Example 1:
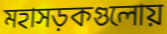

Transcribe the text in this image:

মহাসড়কগুলোয়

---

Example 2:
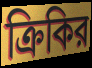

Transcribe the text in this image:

ক্রিকির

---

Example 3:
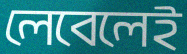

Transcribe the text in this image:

লেবেলেই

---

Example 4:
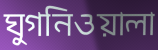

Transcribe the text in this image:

ঘুগনিওয়ালা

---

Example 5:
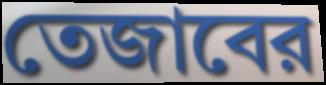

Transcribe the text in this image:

তেজাবের